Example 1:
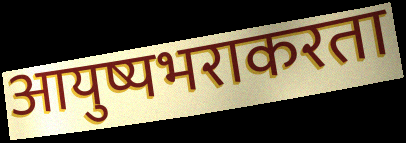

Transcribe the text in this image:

आयुष्यभराकरता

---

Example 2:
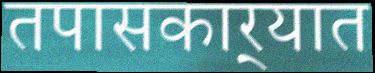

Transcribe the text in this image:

तपासकार्यात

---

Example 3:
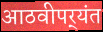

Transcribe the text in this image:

आठवीपर्यंत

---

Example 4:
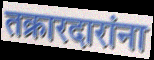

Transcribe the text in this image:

तक्रारदारांना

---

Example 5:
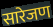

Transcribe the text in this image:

सारेजण